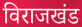
विराजखंड